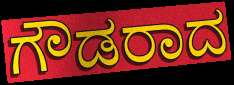
ಗೌಡರಾದ